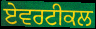
ਏਵਰਟੀਕਲ